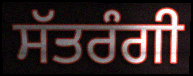
ਸੱਤਰੰਗੀ